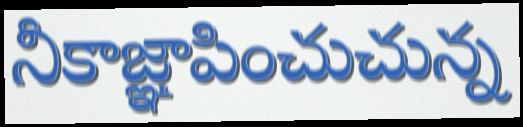
నీకాజ్ఞాపించుచున్న